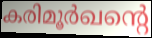
കരിമൂർഖന്റെ